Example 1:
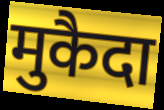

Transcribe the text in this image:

मुकैदा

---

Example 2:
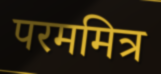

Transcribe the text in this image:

परममित्र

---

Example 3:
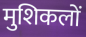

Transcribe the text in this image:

मुशिकलों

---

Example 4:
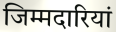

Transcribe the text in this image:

जिम्मदारियां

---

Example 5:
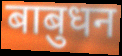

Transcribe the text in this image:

बाबुधन